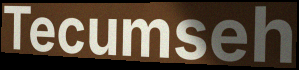
Tecumseh